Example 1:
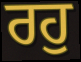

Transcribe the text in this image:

ਰਹੁ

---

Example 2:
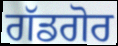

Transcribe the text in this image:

ਗੱਡਗੋਰ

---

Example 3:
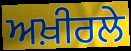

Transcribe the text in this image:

ਅਖ਼ੀਰਲੇ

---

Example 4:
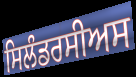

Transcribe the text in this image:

ਸਿਲੰਡਰਸੀਅਸ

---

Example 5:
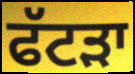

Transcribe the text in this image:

ਫੱਟੜਾ